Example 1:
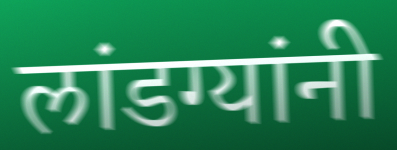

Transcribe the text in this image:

लांडग्यांनी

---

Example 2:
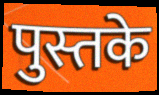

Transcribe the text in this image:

पुस्‍तके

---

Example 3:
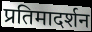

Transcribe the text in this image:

प्रतिमादर्शन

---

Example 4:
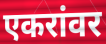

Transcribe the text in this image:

एकरांवर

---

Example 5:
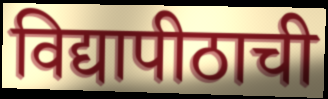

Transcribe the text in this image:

विद्यापीठाची